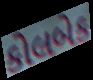
કોલબેક